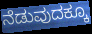
ನೆಡುವುದಕ್ಕೂ